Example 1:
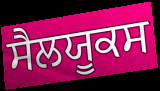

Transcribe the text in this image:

ਸੈਲਯੂਕਸ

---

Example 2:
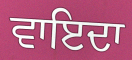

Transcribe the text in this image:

ਵਾਇਦਾ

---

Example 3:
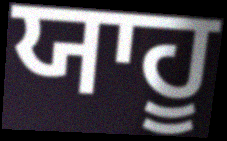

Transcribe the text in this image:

ਯਾਹੂ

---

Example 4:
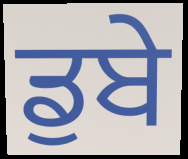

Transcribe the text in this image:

ਡੁਬੇ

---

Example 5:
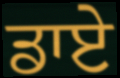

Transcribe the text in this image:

ਡਾਏ